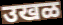
उखळ